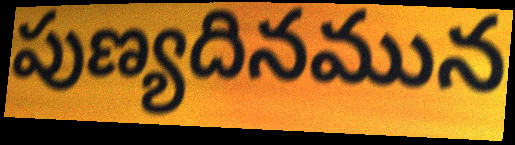
పుణ్యదినమున